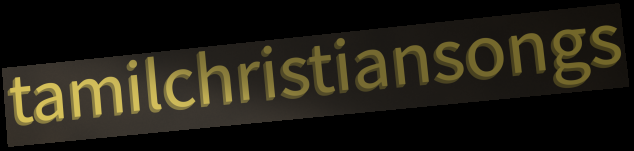
tamilchristiansongs